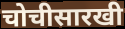
चोचीसारखी